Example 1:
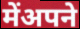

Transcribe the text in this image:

मेंअपने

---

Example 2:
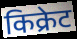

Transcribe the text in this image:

किक्रेट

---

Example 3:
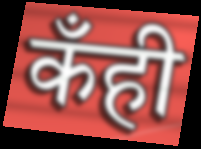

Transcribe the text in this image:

कँही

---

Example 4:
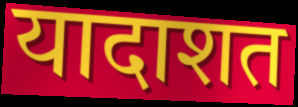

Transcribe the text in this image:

यादाशत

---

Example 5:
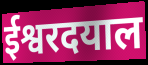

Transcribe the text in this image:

ईश्वरदयाल